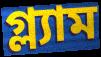
গ্ল্যাম